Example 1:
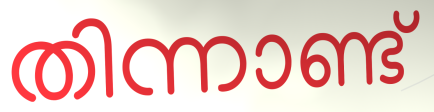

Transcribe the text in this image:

തിന്നാണ്ട്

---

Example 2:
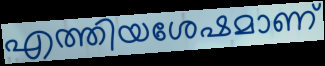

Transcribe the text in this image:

എത്തിയശേഷമാണ്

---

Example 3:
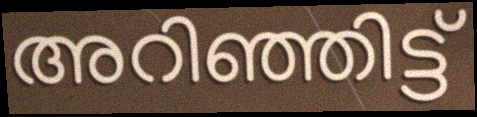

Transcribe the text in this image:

അറിഞ്ഞിട്ട്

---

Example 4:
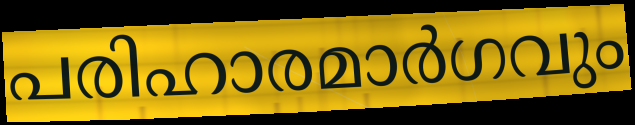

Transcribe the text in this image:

പരിഹാരമാർഗവും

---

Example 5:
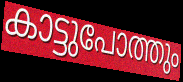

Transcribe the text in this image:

കാട്ടുപോത്തും